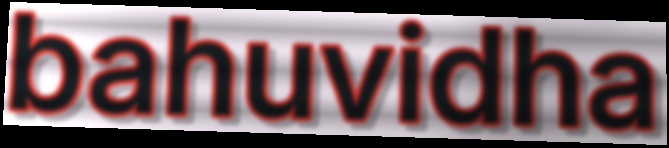
bahuvidha